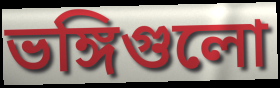
ভঙ্গিগুলো